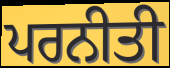
ਪਰਨੀਤੀ